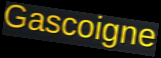
Gascoigne